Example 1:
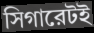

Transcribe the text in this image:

সিগারেটই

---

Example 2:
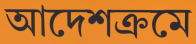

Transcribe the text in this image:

আদেশক্রমে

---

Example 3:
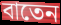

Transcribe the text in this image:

বাতেন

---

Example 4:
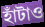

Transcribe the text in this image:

হাঁটাও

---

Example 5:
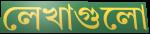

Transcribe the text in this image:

লেখাগুলো